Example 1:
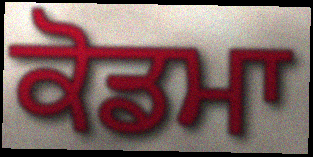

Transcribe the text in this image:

ਕੋਡਮਾ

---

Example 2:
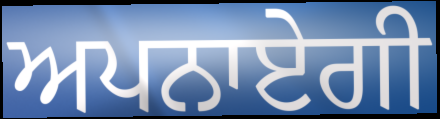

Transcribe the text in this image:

ਅਪਨਾਏਗੀ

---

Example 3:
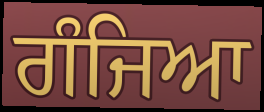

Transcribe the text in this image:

ਗੰਜਿਆ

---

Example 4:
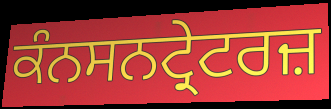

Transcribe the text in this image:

ਕੰਨਸਨਟ੍ਰੇਟਰਜ਼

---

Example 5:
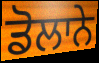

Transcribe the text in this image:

ਡੋਲਾਨੇ